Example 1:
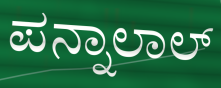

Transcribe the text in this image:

ಪನ್ನಾಲಾಲ್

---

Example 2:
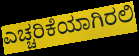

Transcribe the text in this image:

ಎಚ್ಚರಿಕೆಯಾಗಿರಲಿ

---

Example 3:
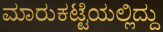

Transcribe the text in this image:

ಮಾರುಕಟ್ಟೆಯಲ್ಲಿದ್ದು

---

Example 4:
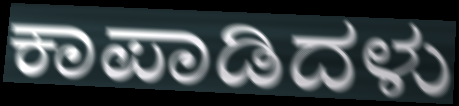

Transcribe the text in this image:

ಕಾಪಾಡಿದಳು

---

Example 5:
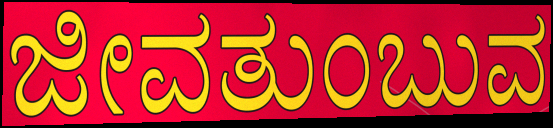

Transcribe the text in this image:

ಜೀವತುಂಬುವ